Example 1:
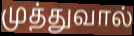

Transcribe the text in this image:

முத்துவால்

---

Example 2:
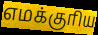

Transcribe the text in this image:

எமக்குரிய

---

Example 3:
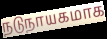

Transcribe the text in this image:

நடுநாயகமாக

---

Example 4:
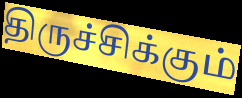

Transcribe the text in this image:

திருச்சிக்கும்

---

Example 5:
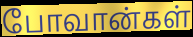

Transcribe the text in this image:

போவான்கள்